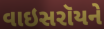
વાઇસરૉયને